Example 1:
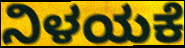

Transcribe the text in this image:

ನಿಳಯಕೆ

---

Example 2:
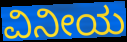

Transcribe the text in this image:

ವಿನೀಯ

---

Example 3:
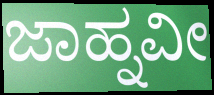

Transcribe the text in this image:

ಜಾಹ್ನವೀ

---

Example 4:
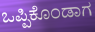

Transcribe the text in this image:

ಒಪ್ಪಿಕೊಂಡಾಗ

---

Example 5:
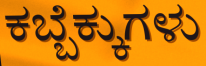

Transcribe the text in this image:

ಕಬ್ಬೆಕ್ಕುಗಳು